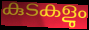
കുടകളും